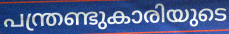
പന്ത്രണ്ടുകാരിയുടെ